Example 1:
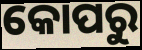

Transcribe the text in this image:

କୋପରୁ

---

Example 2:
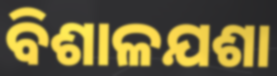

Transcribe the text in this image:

ବିଶାଳଯଶା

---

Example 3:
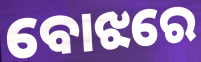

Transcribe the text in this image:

ବୋଝରେ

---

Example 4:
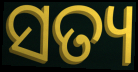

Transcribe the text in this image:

ସତ୍ୟ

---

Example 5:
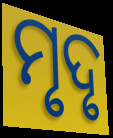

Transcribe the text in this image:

ମୃଦୃ